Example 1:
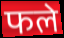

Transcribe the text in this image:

फले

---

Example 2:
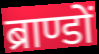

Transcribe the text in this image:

ब्राण्डों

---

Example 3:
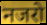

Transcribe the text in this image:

नजरो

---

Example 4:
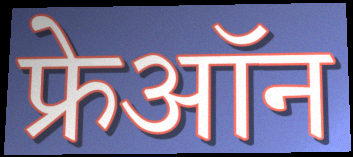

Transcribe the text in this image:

फ्रेऑन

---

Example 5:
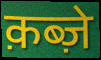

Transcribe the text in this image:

क़ब्ज़े